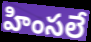
హింసలే